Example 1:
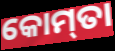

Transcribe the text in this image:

କୋମ୍‌ତା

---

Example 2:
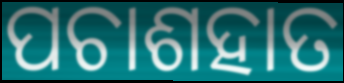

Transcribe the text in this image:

ପଚାଶହାତ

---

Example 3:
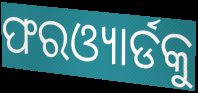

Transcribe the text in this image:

ଫରଓ୍ୟାର୍ଡକୁ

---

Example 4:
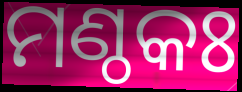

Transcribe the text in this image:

ମଣ୍ଠକଃ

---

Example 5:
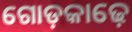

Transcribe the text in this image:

ଗୋଡ଼କାଢ଼େ